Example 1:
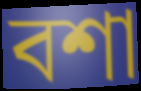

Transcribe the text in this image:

বশা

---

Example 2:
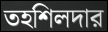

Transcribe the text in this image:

তহশিলদার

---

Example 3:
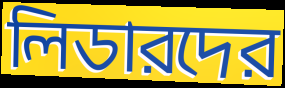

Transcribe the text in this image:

লিডারদের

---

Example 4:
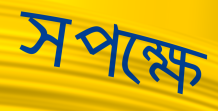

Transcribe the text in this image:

সপক্ষে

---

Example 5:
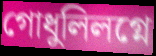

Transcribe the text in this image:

গোধুলিলগ্নে